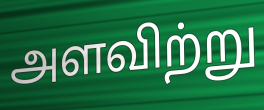
அளவிற்று